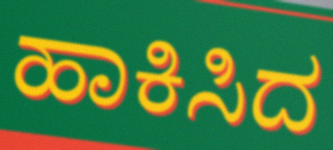
ಹಾಕಿಸಿದ